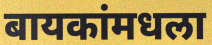
बायकांमधला